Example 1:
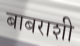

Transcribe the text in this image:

बाबराशी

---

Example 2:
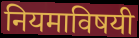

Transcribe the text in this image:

नियमाविषयी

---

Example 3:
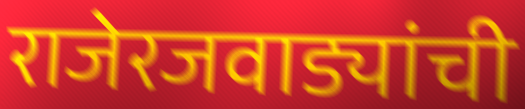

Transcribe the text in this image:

राजेरजवाड्यांची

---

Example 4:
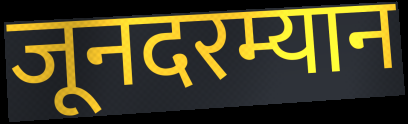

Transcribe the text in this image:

जूनदरम्यान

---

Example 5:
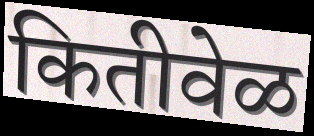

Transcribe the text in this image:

कितीवेळ